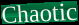
Chaotic